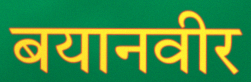
बयानवीर